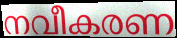
നവീകരണ